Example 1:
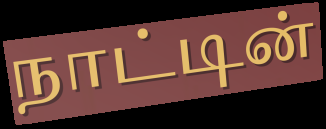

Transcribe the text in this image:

நாட்டின்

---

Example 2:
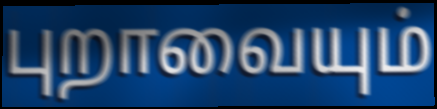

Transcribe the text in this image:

புறாவையும்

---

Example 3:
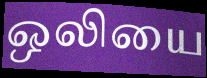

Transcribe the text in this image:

ஒலியை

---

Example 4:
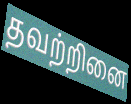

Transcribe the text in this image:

தவற்றினை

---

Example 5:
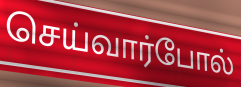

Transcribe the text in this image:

செய்வார்போல்